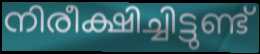
നിരീക്ഷിച്ചിട്ടുണ്ട്